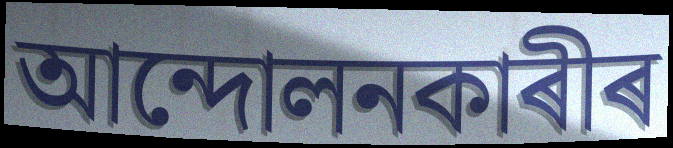
আন্দোলনকাৰীৰ